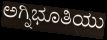
ಅಗ್ನಿಭೂತಿಯು